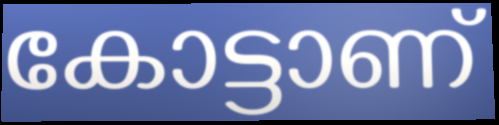
കോട്ടാണ്